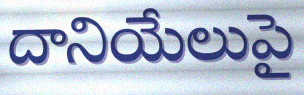
దానియేలుపై